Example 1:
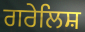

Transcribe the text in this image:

ਗਰੇਲਿਸ਼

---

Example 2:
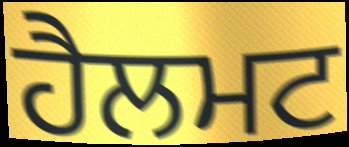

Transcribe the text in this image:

ਹੈਲਮਟ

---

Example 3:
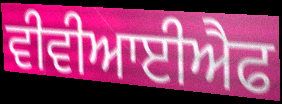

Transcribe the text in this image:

ਵੀਵੀਆਈਐਫ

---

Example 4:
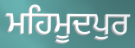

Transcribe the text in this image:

ਮਹਿਮੂਦਪੁਰ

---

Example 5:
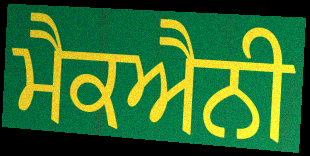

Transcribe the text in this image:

ਮੈਕਐਨੀ